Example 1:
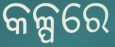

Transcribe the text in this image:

କଳ୍ପରେ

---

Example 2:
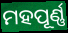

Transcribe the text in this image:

ମହପୂର୍ଣ୍ଣ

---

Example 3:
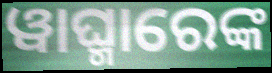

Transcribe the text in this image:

ୱାଘ୍ମାରେଙ୍କ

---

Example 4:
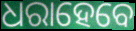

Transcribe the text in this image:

ଧରାହେବେ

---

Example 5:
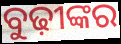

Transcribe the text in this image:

ବୁଢ଼ୀଙ୍କର